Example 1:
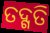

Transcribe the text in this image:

ତଦ୍ଗତି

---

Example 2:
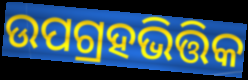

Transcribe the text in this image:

ଉପଗ୍ରହଭିତ୍ତିକ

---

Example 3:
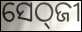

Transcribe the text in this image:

ସେଠ୍‌ଜୀ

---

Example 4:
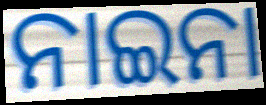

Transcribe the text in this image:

ନାଇନା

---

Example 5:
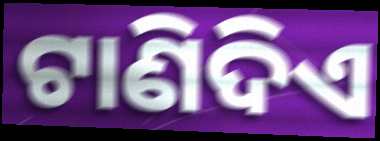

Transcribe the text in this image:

ଟାଣିଦିଏ